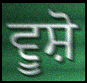
ਵੂਸ਼ੋ